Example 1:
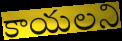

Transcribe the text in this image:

కాయలని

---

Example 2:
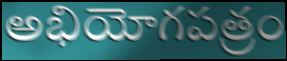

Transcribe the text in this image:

అభియోగపత్రం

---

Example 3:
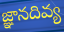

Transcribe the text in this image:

జ్ఞానదివ్య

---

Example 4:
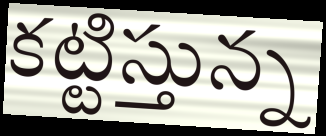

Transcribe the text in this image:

కట్టిస్తున్న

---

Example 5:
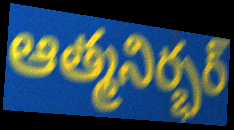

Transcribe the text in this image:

ఆత్మనిర్భర్